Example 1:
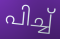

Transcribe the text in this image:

പിച്ച്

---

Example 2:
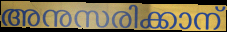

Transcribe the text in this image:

അനുസരിക്കാന്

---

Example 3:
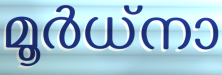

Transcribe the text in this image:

മൂർധ്നാ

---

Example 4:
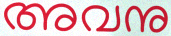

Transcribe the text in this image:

അവനു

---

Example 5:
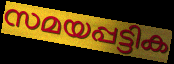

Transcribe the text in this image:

സമയപ്പട്ടിക